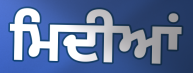
ਮਿਦੀਆਂ